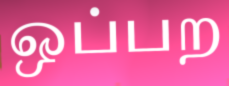
ஒப்பற